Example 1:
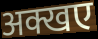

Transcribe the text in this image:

अक्खए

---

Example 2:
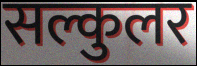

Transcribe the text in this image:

सल्कुलर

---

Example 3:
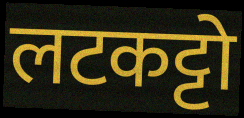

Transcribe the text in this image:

लटकट्टो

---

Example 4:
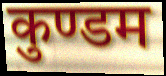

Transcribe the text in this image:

कुण्डम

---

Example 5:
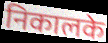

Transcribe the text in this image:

निकालके